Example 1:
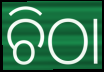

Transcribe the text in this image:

ଚିଠା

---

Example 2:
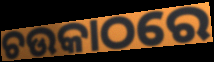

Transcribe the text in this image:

ଚଉକାଠରେ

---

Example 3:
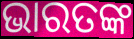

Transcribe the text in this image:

ଭାରତଙ୍କ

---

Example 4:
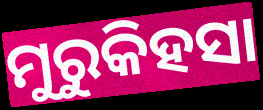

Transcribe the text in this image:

ମୁରୁକିହସା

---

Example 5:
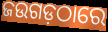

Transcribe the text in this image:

ଜଉଗଡ଼ଠାରେ